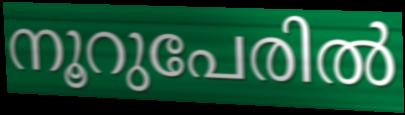
നൂറുപേരിൽ